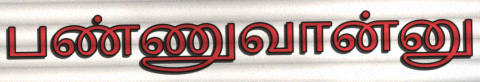
பண்ணுவான்னு